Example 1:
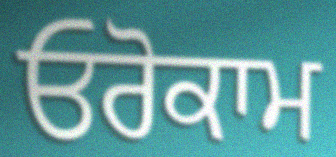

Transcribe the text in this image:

ਓਰੋਕਾਮ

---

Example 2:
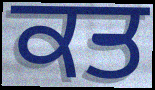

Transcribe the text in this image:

ਕਤ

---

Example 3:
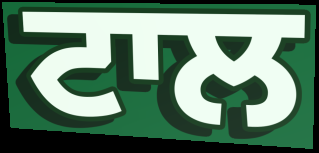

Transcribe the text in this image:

ਟਾਲ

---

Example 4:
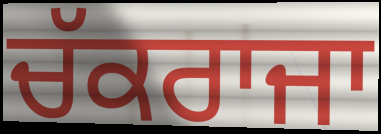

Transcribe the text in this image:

ਚੱਕਰਾਜਾ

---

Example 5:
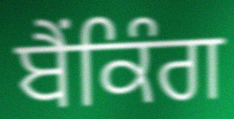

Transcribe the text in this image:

ਬੈਂਕਿੰਗ